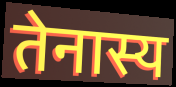
तेनास्य